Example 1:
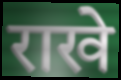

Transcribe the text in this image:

राखे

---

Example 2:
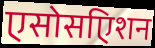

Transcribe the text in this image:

एसोसएिशन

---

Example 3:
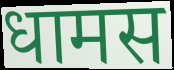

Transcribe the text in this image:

धामस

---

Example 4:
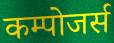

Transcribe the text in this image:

कम्पोजर्स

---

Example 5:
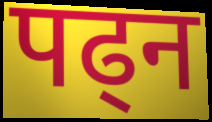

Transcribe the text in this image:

पढ्न